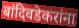
बांदिवडेकरांना